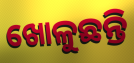
ଖୋଳୁଛନ୍ତି